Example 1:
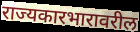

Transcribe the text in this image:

राज्यकारभारावरील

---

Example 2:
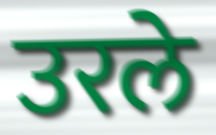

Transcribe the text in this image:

उरले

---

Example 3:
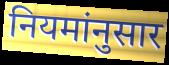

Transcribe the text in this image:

नियमांनुसार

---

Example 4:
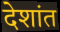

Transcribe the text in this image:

देशांत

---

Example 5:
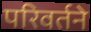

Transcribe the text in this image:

परिवर्तने